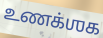
உணக்ஶக